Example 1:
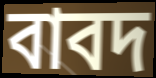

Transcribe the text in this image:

বাবদ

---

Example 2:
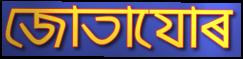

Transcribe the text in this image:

জোতাযোৰ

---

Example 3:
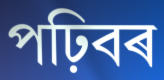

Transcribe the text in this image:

পঢ়িবৰ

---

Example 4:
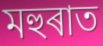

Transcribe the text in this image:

মহুৰাত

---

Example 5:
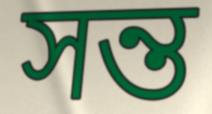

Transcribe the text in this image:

সন্ত